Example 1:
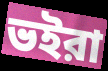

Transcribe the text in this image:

ভইরা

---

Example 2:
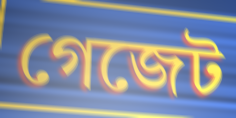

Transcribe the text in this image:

গেজেট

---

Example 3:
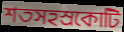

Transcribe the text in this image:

শতসহস্রকোটি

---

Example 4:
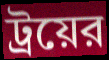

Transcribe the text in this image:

ট্রয়ের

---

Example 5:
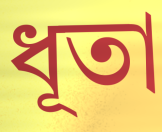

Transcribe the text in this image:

ধূতা